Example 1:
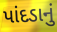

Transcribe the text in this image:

પાંદડાનું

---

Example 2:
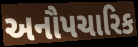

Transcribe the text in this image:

અનૌપચારિક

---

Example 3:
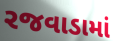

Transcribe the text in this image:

રજવાડામાં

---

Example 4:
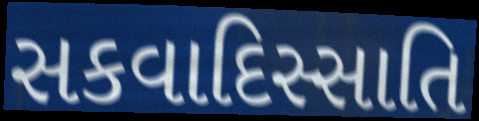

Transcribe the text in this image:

સકવાદિસ્સાતિ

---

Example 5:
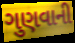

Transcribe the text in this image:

ગુણવાની